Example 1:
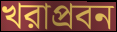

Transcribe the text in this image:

খরাপ্রবন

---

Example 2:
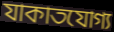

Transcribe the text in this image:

যাকাতযোগ্য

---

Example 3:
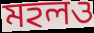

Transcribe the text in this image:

মহলও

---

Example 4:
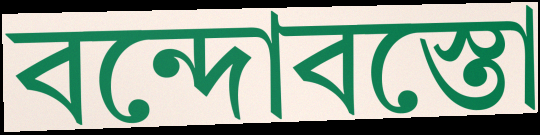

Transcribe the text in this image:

বন্দোবস্তো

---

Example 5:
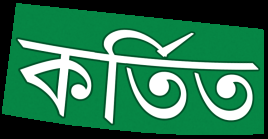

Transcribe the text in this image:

কর্তিত